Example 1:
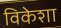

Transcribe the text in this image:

विकेशा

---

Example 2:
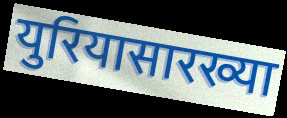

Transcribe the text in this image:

युरियासारख्या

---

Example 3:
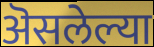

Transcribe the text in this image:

ऄसलेल्या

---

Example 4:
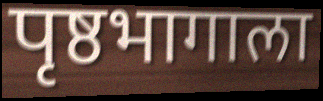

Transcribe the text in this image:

पृष्ठभागाला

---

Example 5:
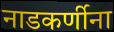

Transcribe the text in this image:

नाडकर्णीना